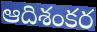
ఆదిశంకర